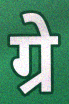
ग्रे